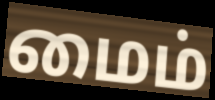
மைம்